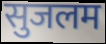
सुजलम